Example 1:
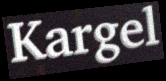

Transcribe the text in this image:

Kargel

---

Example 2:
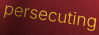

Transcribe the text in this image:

persecuting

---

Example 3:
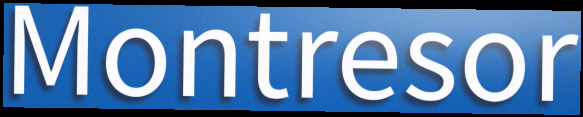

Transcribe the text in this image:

Montresor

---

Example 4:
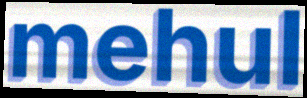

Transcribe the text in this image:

mehul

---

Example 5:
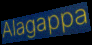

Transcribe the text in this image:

Alagappa